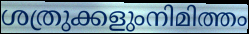
ശത്രുക്കളുംനിമിത്തം